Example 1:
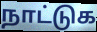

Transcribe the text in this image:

நாட்டுக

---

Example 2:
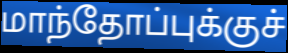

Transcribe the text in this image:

மாந்தோப்புக்குச்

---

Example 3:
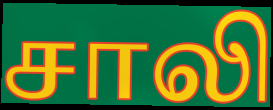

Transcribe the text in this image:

சாலி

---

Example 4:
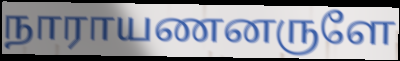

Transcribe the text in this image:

நாராயணனருளே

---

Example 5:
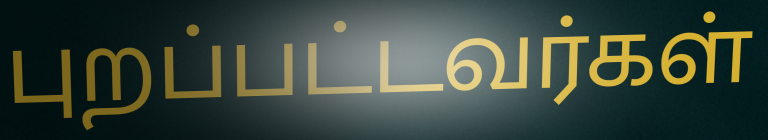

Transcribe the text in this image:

புறப்பட்டவர்கள்